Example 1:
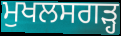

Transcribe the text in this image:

ਮੁਖਲਸਗੜ੍ਹ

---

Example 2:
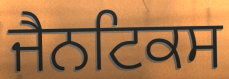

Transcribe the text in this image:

ਜੈਨਟਿਕਸ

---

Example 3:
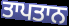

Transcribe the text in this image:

ਤਾਪਤਾਨ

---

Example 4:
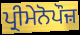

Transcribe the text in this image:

ਪ੍ਰੀਮੇਨੋਪੌਜ਼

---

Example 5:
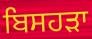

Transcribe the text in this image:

ਬਿਸਹੜਾ